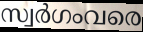
സ്വർഗംവരെ